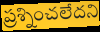
ప్రశ్నించలేదని